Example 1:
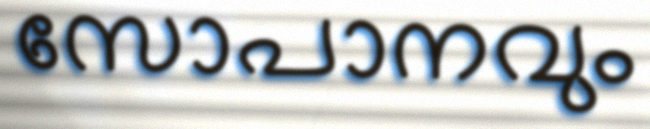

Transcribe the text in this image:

സോപാനവും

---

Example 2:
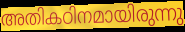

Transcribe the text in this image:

അതികഠിനമായിരുന്നു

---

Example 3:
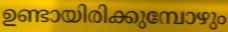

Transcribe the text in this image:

ഉണ്ടായിരിക്കുമ്പോഴും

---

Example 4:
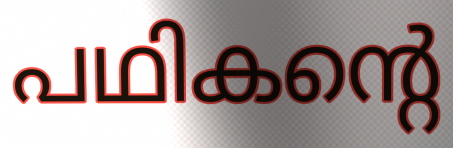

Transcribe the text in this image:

പഥികന്റെ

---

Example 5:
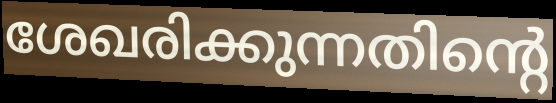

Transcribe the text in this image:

ശേഖരിക്കുന്നതിന്റെ